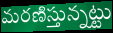
మరణిస్తున్నట్టు